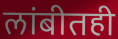
लांबीतही